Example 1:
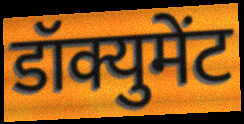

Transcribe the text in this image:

डॉक्युमेंट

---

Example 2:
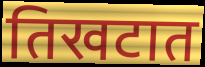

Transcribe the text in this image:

तिखटात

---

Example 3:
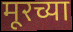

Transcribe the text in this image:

मूरच्या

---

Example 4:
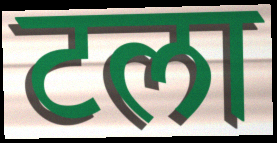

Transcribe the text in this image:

टला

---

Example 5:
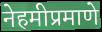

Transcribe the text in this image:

नेहमीप्रमाणे